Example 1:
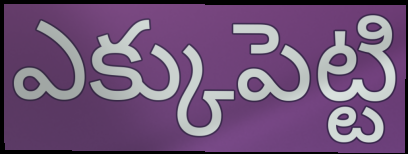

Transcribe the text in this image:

ఎక్కుపెట్టి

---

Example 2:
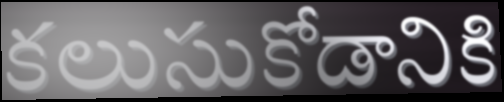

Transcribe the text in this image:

కలుసుకోడానికి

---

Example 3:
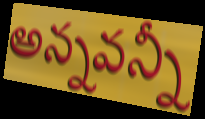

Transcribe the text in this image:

అన్నవన్నీ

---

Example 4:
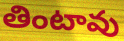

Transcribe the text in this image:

తింటావు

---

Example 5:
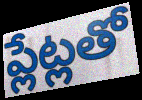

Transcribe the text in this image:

ప్లేట్లతో